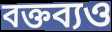
বক্তব্যও